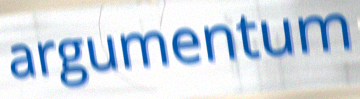
argumentum